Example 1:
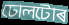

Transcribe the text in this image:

ঢোলটোৰ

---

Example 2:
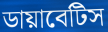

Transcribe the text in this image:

ডায়াবেটিস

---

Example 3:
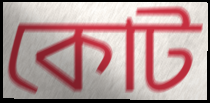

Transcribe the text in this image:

কোট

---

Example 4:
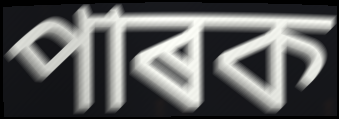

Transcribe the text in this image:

পাৰক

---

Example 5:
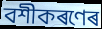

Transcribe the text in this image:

বশীকৰণেৰ